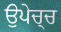
ਉਪੇਚ੍ਚ